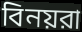
বিনয়রা